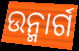
ଉନ୍ମାର୍ଗ